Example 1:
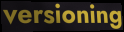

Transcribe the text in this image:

versioning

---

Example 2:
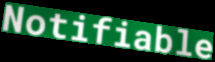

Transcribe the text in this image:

Notifiable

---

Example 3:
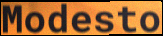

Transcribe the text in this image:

Modesto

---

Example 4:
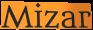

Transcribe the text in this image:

Mizar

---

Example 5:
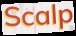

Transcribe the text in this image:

Scalp